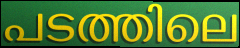
പടത്തിലെ